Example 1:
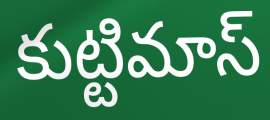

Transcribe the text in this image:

కుట్టిమాస్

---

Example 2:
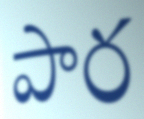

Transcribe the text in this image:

పార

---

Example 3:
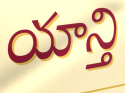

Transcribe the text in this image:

యాన్తి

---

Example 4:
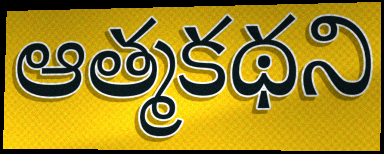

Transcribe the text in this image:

ఆత్మకథని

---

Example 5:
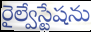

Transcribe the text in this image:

రైల్వేస్టేషను